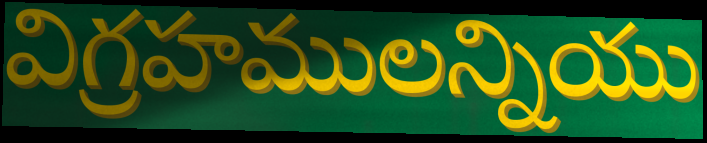
విగ్రహములన్నియు